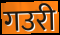
गउरी